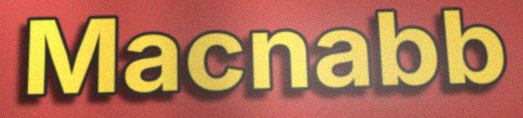
Macnabb